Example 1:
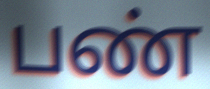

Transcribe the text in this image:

பண்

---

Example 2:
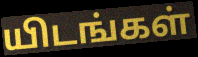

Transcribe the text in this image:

யிடங்கள்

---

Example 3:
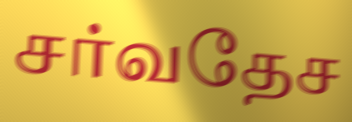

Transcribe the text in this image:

சர்வதேச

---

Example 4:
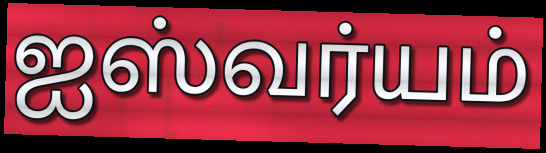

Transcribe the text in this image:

ஐஸ்வர்யம்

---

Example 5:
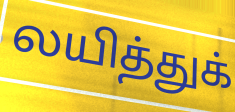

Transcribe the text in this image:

லயித்துக்